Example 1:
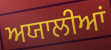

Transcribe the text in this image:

ਅਯਾਲੀਆਂ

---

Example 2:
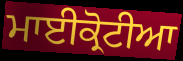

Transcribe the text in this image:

ਮਾਈਕ੍ਰੋਟੀਆ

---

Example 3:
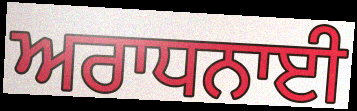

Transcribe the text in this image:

ਅਰਾਧਨਾਈ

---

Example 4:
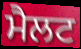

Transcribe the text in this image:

ਮੈਲਟ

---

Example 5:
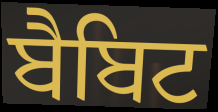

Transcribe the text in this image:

ਬੈਬਿਟ